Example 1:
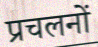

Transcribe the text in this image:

प्रचलनों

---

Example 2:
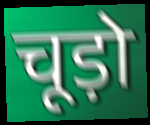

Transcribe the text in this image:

चूड़ो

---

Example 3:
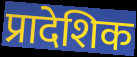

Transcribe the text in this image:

प्रादेशिक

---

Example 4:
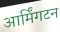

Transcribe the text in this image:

आर्मिंगटन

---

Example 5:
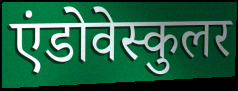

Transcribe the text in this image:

एंडोवेस्कुलर